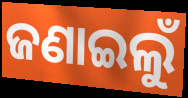
ଜଣାଇଲୁଁ